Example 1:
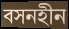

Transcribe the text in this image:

বসনহীন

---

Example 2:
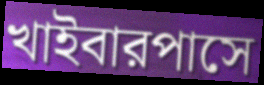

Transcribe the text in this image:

খাইবারপাসে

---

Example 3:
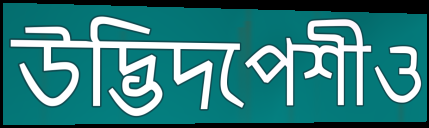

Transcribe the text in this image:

উদ্ভিদপেশীও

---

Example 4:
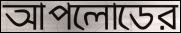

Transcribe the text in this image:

আপলোডের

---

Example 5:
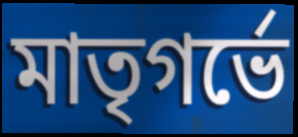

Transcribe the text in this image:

মাতৃগর্ভে